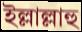
ইল্লাল্লাহু